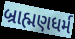
બ્રાહ્મણધર્મ